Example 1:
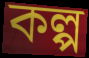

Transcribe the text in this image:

কল্প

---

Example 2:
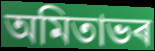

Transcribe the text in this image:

অমিতাভৰ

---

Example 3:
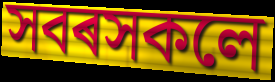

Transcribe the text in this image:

সবৰসকলে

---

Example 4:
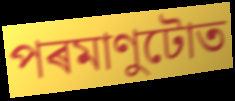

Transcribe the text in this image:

পৰমাণুটোত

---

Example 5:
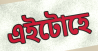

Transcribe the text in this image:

এইটোহে